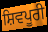
ਸ਼ਿਵਪੂਰੀ